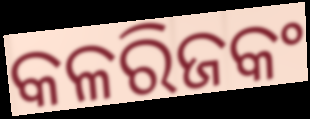
କଳରିଜକଂ